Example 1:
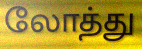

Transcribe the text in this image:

லோத்து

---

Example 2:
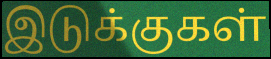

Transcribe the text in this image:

இடுக்குகள்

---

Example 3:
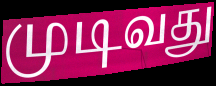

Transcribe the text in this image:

முடிவது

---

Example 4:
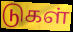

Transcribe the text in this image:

டுகள்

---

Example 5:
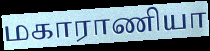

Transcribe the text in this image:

மகாராணியா